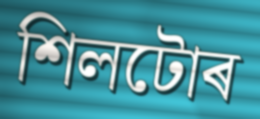
শিলটোৰ